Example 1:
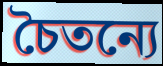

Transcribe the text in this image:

চৈতন্যে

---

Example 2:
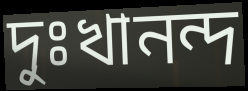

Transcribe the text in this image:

দুঃখানন্দ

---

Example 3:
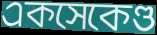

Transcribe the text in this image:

একসেকেণ্ড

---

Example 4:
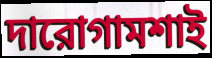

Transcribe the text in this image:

দারোগামশাই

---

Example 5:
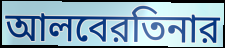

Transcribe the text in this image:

আলবেরতিনার